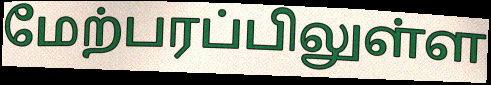
மேற்பரப்பிலுள்ள